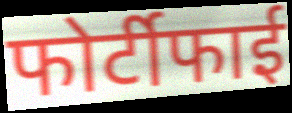
फोर्टीफाई